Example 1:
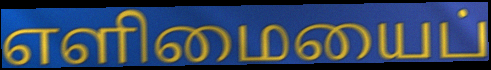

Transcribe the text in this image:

எளிமையைப்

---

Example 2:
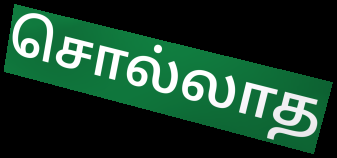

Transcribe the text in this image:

சொல்லாத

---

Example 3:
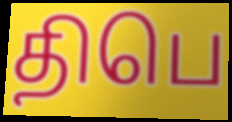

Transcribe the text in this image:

திபெ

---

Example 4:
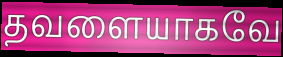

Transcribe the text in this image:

தவளையாகவே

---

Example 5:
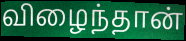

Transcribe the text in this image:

விழைந்தான்